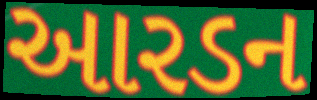
આરડન